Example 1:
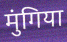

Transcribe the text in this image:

मुंगिया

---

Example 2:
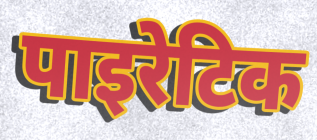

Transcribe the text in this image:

पाइरेटिक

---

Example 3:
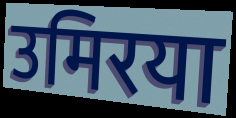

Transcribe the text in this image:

उमिरया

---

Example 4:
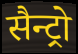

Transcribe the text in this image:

सैन्ट्रो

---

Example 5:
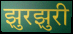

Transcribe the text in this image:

झुरझुरी